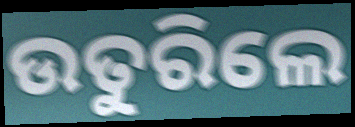
ଉତୁରିଲେ